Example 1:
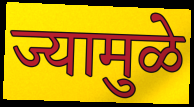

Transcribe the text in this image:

ज्यामुळे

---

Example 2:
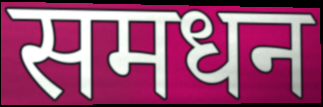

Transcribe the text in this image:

समधन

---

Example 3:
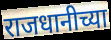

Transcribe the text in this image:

राजधानीच्या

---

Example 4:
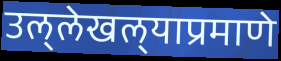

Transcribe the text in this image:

उल्लेखल्याप्रमाणे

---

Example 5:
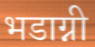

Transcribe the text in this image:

भडाग्नी